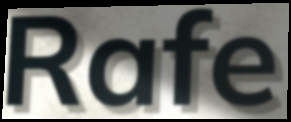
Rafe